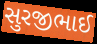
સુરજીભાઈ